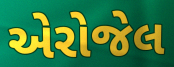
એરોજેલ